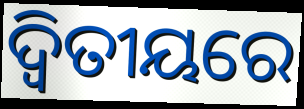
ଦ୍ଵିତୀୟରେ